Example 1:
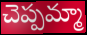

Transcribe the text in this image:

చెప్పమ్మా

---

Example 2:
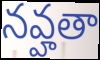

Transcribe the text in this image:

నవ్హతా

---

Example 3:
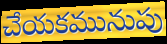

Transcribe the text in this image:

చేయకమునుపు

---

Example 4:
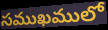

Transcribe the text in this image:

సముఖములో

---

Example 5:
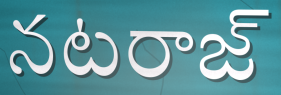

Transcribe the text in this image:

నటరాజ్